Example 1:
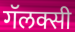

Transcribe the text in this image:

गॅलक्सी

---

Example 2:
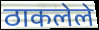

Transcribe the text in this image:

ठाकलेले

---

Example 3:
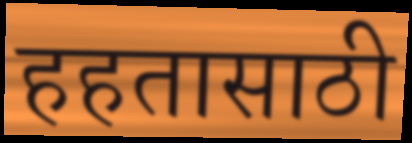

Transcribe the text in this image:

हहतासाठी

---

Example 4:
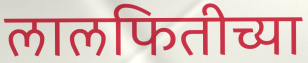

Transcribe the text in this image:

लालफितीच्या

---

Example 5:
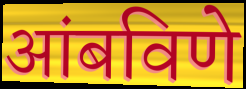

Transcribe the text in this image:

आंबविणे